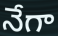
నేగా